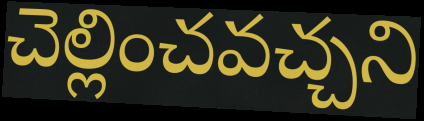
చెల్లించవచ్చని